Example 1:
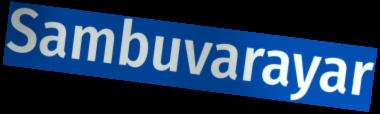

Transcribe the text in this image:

Sambuvarayar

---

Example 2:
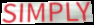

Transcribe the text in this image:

SIMPLY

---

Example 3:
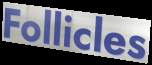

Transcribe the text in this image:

Follicles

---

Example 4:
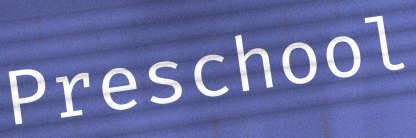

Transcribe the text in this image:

Preschool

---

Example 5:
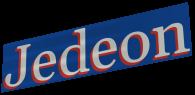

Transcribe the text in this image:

Jedeon